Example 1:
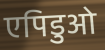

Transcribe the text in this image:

एपिडुओ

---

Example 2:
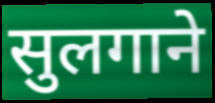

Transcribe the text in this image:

सुलगाने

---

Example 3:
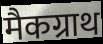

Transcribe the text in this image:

मैकग्राथ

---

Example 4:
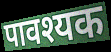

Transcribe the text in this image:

पावश्यक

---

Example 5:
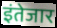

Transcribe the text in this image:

इंतेजार